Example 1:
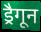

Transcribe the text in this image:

ड्रैगून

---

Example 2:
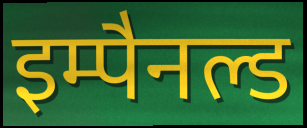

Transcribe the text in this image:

इम्पैनल्ड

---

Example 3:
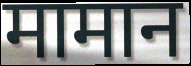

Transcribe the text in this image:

मामान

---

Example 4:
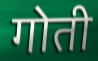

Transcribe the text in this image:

गोती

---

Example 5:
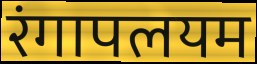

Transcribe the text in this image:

रंगापलयम